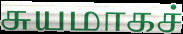
சுயமாகச்